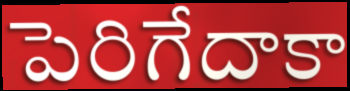
పెరిగేదాకా